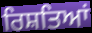
ਰਿਸ਼ਤਿਆਂ